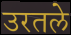
उरतले